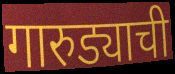
गारुड्याची